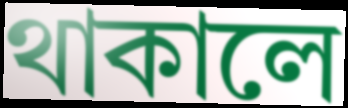
থাকালে